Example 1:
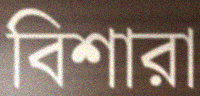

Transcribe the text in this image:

বিশারা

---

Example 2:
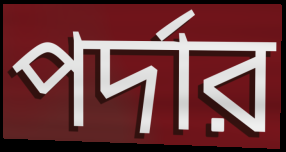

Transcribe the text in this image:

পর্দার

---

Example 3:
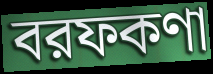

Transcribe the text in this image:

বরফকণা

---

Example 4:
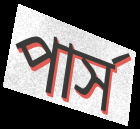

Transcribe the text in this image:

পার্স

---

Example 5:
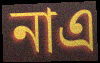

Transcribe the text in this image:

নাএ